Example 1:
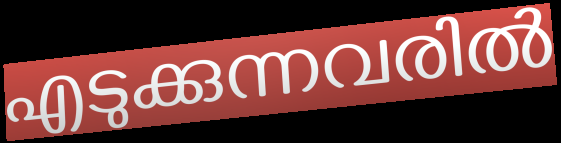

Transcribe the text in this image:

എടുക്കുന്നവരിൽ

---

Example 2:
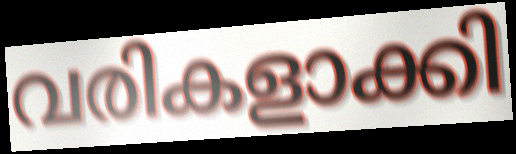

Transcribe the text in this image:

വരികളാക്കി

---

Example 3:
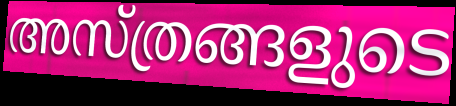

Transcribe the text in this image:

അസ്ത്രങ്ങളുടെ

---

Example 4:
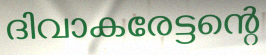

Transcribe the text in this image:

ദിവാകരേട്ടന്റെ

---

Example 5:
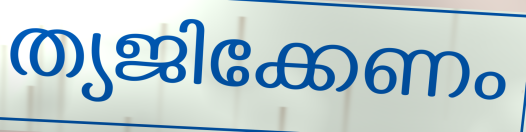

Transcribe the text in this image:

ത്യജിക്കേണം